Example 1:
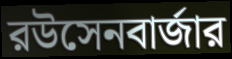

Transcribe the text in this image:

রউসেনবার্জার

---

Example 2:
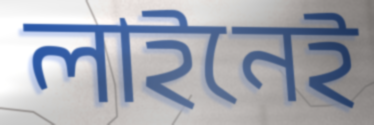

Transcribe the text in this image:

লাইনেই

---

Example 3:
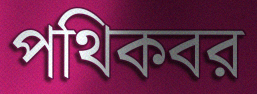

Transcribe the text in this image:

পথিকবর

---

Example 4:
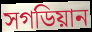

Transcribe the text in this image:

সগডিয়ান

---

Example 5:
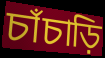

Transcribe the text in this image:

চাঁচাড়ি